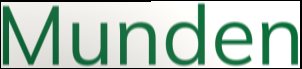
Munden